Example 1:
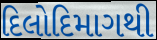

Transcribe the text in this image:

દિલોદિમાગથી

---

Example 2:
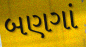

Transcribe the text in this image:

બણગાં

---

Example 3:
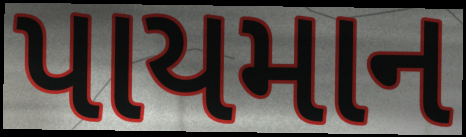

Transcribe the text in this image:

પાયમાન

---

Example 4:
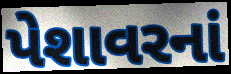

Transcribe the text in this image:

પેશાવરનાં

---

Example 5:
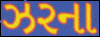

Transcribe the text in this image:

ઝરના